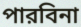
পারবিনা